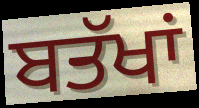
ਬਤੱਖਾਂ